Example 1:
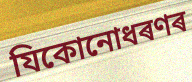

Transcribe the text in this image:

যিকোনোধৰণৰ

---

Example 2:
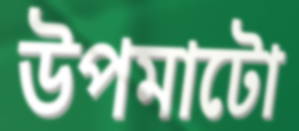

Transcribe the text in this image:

উপমাটো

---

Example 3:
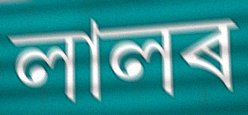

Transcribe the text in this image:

লালৰ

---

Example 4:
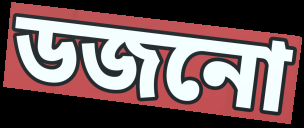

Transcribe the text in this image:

ডজনো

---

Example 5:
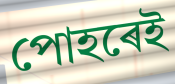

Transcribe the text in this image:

পোহৰেই